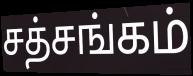
சத்சங்கம்